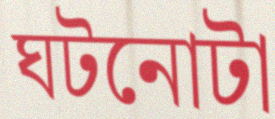
ঘটনোটা